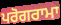
ਪਰੋਗਰਾਮਾ